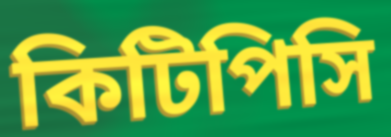
কিটিপিসি